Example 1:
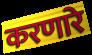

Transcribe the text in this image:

करणारे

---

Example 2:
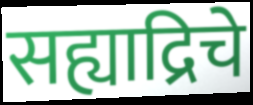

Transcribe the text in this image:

सह्याद्रिचे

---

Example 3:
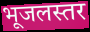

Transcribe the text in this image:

भूजलस्तर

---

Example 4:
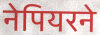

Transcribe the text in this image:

नेपियरने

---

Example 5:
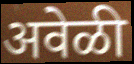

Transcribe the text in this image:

अवेळी